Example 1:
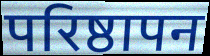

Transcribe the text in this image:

परिष्ठापन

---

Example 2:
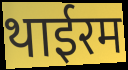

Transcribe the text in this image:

थाईरम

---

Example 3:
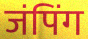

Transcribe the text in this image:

जंपिंग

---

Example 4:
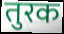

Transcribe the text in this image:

तुरक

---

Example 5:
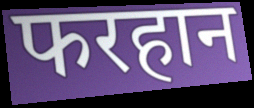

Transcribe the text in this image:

फरहान